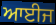
ਆਈਜ